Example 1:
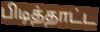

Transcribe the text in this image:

பிடித்தாட்ட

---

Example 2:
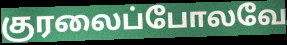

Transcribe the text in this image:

குரலைப்போலவே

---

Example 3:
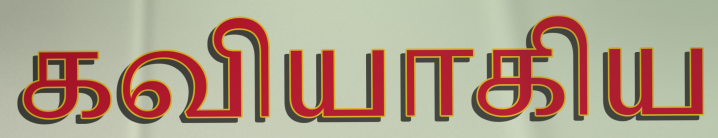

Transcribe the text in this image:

கவியாகிய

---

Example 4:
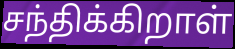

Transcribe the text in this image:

சந்திக்கிறாள்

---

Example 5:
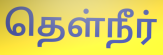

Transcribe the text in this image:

தெள்நீர்